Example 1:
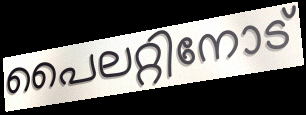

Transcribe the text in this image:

പൈലറ്റിനോട്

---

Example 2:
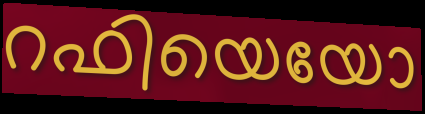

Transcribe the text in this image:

റഫിയെയോ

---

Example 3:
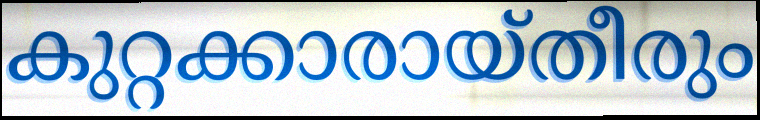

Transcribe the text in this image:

കുറ്റക്കാരായ്തീരും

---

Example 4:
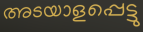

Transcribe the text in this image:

അടയാളപ്പെട്ടു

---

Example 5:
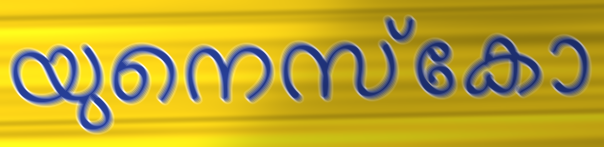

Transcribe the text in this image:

യുനെസ്കോ